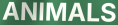
ANIMALS